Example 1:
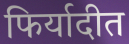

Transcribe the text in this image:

फिर्यादीत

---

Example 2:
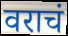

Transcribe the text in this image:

वराचं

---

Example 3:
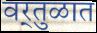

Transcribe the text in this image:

वर्तुळात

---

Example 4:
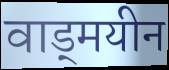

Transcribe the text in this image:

वाड्‌मयीन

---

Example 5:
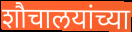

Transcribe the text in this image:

शौचालयांच्या